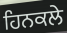
ਹਿਨਕਲੇ